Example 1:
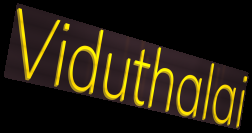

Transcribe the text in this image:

Viduthalai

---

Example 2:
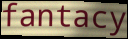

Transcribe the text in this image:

fantacy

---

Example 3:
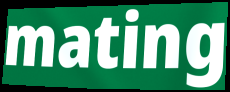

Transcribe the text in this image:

mating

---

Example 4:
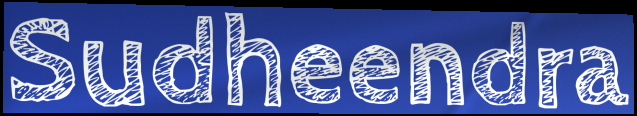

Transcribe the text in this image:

Sudheendra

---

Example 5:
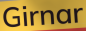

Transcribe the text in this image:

Girnar